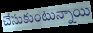
చేసుకుంటున్నాయి